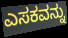
ಎಸಕವನ್ನು